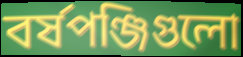
বর্ষপঞ্জিগুলো